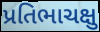
પ્રતિભાચક્ષુ